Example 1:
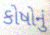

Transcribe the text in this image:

કોષોનું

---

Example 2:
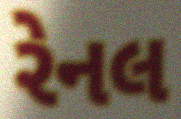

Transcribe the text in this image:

રેનલ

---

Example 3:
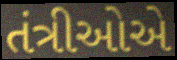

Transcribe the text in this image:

તંત્રીઓએ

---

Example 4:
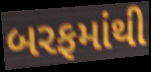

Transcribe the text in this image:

બરફમાંથી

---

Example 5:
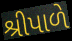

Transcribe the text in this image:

શ્રીપાળે